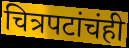
चित्रपटांचंही